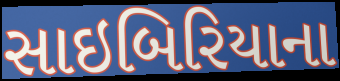
સાઇબિરિયાના